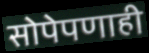
सोपेपणाही